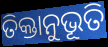
ତିକ୍ତାନୁଭୂତି